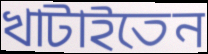
খাটাইতেন